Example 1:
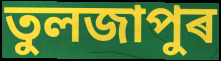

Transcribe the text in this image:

তুলজাপুৰ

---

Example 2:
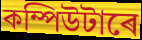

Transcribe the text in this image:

কম্পিউটাৰে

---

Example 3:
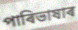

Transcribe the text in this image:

পাৰিভাষাৰ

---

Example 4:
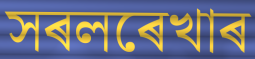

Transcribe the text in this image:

সৰলৰেখাৰ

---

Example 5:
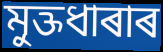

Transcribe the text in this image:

মুক্তধাৰাৰ